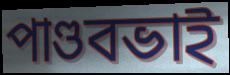
পাণ্ডবভাই